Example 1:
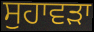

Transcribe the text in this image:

ਸੁਹਾਵੜਾ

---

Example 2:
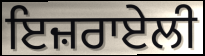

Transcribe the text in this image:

ਇਜ਼ਰਾਏਲੀ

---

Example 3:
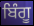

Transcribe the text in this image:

ਬਿੰਗੂ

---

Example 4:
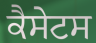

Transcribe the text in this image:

ਕੈਸੇਟਸ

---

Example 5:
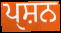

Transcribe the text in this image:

ਪੑਸ਼ਨ